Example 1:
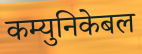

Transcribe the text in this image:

कम्युनिकेबल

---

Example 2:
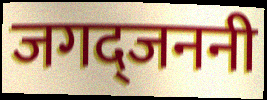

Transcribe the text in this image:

जगद्जननी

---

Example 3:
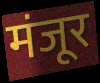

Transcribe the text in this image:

मंजूर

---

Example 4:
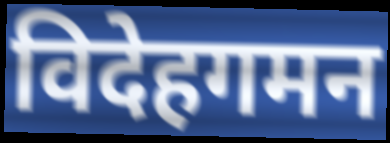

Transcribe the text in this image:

विदेहगमन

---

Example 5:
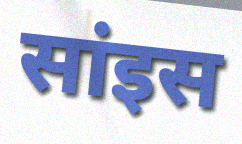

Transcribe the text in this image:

सांइस